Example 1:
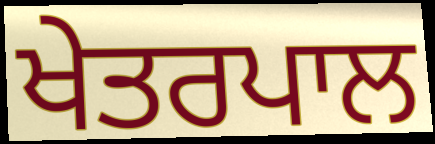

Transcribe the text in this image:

ਖੇਤਰਪਾਲ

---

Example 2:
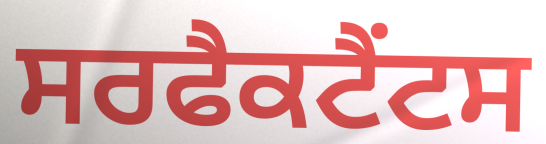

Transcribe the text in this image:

ਸਰਫੈਕਟੈਂਟਸ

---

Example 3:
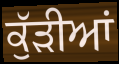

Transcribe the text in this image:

ਕੁੱੜੀਆਂ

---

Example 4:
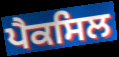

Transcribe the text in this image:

ਪੈਕਸਿਲ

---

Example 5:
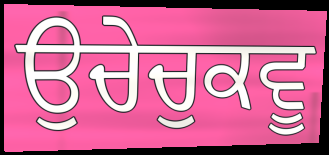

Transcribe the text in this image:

ਉਚੇਚੁਕਵੂ